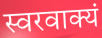
स्वरवाक्यं